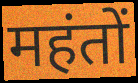
महंतों